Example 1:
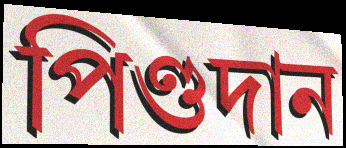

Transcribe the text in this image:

পিণ্ডদান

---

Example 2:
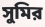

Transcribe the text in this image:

সুমির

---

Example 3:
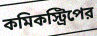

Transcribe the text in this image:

কমিকস্ট্রিপের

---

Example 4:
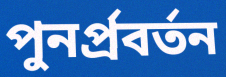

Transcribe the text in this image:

পুনর্প্রবর্তন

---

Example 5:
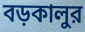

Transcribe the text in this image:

বড়কালুর